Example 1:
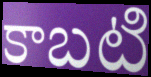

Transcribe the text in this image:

కాబటి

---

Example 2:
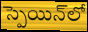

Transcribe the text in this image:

స్పెయిన్‌లో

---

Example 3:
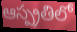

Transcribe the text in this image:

ఆస్ప్రతిలో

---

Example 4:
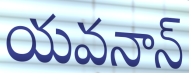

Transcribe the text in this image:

యవనాన్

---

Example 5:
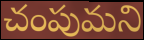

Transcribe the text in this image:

చంపుమని